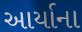
આર્યાના